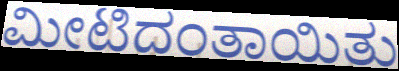
ಮೀಟಿದಂತಾಯಿತು